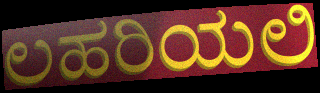
ಲಹರಿಯಲಿ